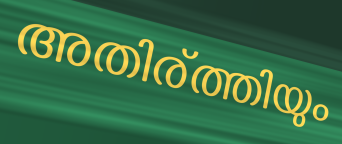
അതിര്ത്തിയും